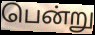
பென்று